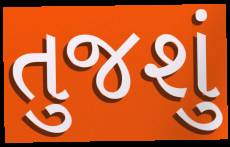
તુજશું